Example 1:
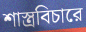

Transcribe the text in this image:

শাস্ত্রবিচারে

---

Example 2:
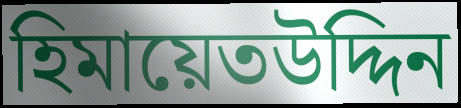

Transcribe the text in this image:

হিমায়েতউদ্দিন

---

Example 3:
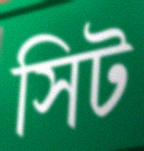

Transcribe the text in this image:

সিট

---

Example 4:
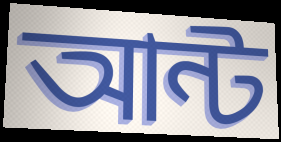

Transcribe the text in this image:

আন্ট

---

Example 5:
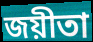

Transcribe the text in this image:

জয়ীতা